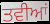
ਤਵੀਆਂ